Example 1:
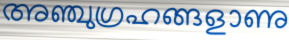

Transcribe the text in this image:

അഞ്ചുഗ്രഹങ്ങളാണു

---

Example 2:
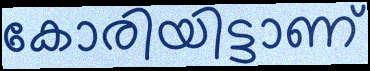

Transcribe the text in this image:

കോരിയിട്ടാണ്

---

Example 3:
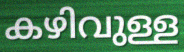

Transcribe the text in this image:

കഴിവുള്ള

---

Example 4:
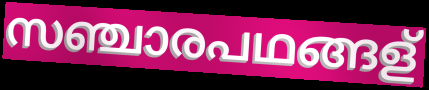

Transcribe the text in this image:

സഞ്ചാരപഥങ്ങള്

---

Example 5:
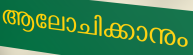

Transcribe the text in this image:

ആലോചിക്കാനും